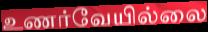
உணர்வேயில்லை